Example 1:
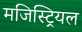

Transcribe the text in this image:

मजिस्ट्रियल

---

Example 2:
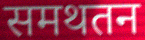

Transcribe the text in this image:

समथतन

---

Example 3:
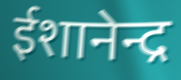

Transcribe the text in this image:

ईशानेन्द्र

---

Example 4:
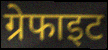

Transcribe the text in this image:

ग्रेफाइट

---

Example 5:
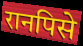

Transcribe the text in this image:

रानपिसे